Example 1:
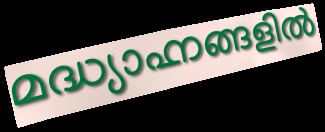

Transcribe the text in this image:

മദ്ധ്യാഹ്നങ്ങളിൽ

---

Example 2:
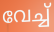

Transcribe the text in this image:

വേച്ച്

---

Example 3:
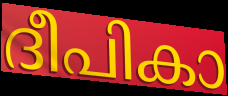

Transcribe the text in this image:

ദീപികാ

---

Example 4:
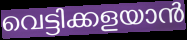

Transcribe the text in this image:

വെട്ടിക്കളയാൻ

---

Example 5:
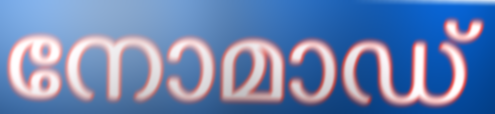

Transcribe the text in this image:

നോമാഡ്